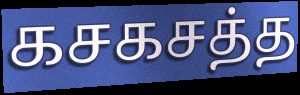
கசகசத்த